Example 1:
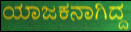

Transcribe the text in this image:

ಯಾಜಕನಾಗಿದ್ದ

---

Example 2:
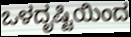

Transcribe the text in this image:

ಒಳದೃಷ್ಟಿಯಿಂದ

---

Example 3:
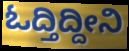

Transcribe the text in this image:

ಓದ್ತಿದ್ದೀನಿ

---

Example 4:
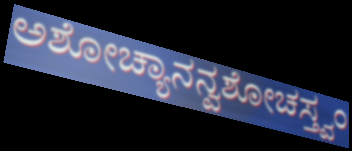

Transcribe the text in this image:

ಅಶೋಚ್ಯಾನನ್ವಶೋಚಸ್ತ್ವಂ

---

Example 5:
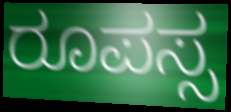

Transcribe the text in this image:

ರೂಪಸ್ಸ